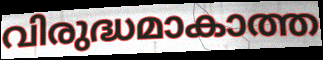
വിരുദ്ധമാകാത്ത